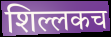
शिल्लकच